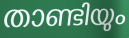
താണ്ടിയും